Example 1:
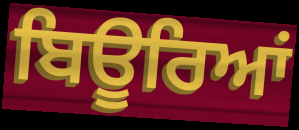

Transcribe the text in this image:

ਬਿਊਰਿਆਂ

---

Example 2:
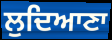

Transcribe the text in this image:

ਲੁਦਿਆਣਾ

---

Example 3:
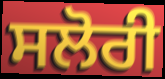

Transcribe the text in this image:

ਸਲੋਰੀ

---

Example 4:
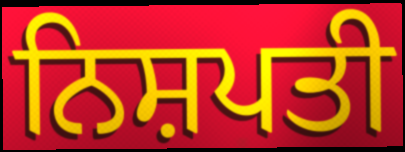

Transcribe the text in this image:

ਨਿਸ਼ਪਤੀ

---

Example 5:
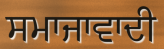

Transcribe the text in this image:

ਸਮਾਜਾਵਾਦੀ